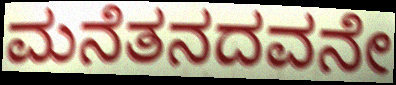
ಮನೆತನದವನೇ